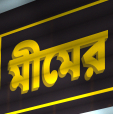
মীমের